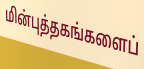
மின்புத்தகங்களைப்